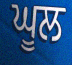
ਘੂਲ